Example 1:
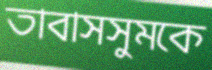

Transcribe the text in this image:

তাবাসসুমকে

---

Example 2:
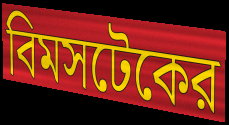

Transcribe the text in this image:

বিমসটেকের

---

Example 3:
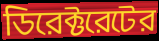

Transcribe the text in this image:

ডিরেক্টরেটের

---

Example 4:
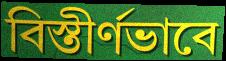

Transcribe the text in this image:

বিস্তীর্ণভাবে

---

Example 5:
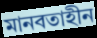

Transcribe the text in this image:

মানবতাহীন